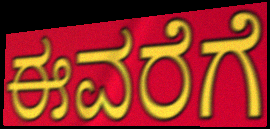
ಈವರೆಗೆ